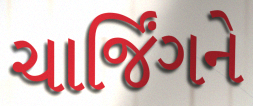
ચાર્જિંગને